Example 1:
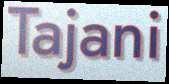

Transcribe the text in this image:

Tajani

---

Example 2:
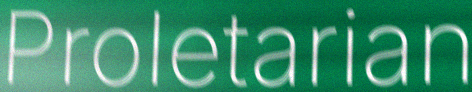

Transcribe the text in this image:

Proletarian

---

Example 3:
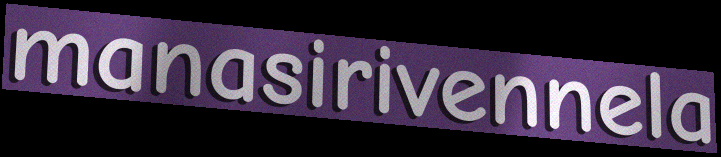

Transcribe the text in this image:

manasirivennela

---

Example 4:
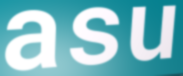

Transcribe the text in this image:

asu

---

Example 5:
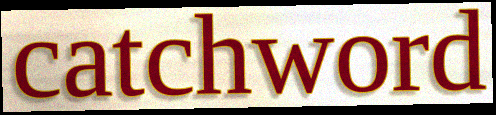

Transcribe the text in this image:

catchword